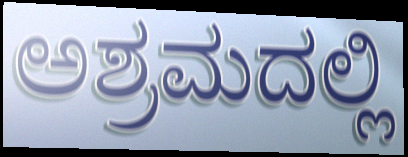
ಅಶ್ರಮದಲ್ಲಿ